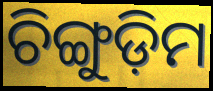
ଚିଙ୍ଗୁଡ଼ିମ